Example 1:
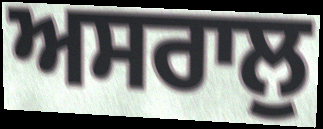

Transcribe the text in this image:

ਅਸਰਾਲੁ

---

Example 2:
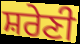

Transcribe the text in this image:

ਸ਼ਰੇਣੀ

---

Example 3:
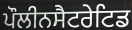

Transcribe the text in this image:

ਪੌਲੀਨਸੈਟਰੇਟਿਡ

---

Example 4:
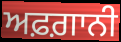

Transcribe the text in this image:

ਅਫ਼ਗ਼ਾਨੀ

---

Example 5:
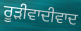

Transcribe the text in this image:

ਰੂੜੀਵਾਦੀਵਾਦ